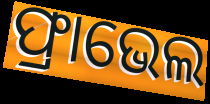
ଫ୍ରାଭେଲ